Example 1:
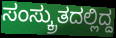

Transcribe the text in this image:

ಸಂಸ್ಕ್ರುತದಲ್ಲಿದ್ದ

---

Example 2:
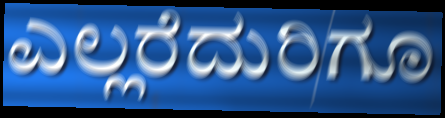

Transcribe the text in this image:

ಎಲ್ಲರೆದುರಿಗೂ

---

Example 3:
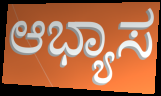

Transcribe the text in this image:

ಆಭ್ಯಾಸ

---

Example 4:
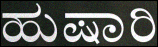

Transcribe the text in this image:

ಹುಷಾರಿ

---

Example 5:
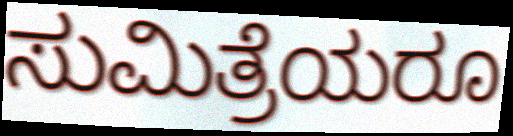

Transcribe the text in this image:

ಸುಮಿತ್ರೆಯರೂ